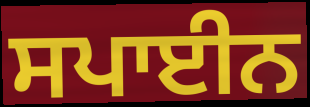
ਸਪਾਈਨ